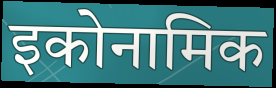
इकोनामिक